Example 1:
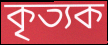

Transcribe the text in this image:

কৃত্যক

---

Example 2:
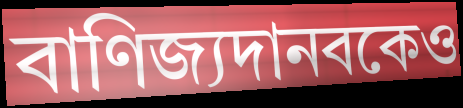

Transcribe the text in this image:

বাণিজ্যদানবকেও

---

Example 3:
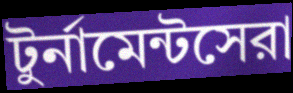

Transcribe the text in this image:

টুর্নামেন্টসেরা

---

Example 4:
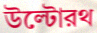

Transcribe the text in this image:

উল্টোরথ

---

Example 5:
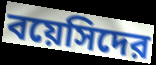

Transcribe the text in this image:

বয়েসিদের